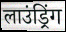
लाउंड्रिंग